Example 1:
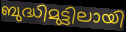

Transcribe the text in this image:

ബുദ്ധിമുട്ടിലായി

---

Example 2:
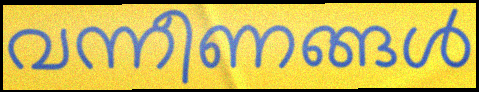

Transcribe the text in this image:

വന്നീണങ്ങൾ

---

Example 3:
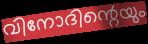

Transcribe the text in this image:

വിനോദിന്റെയും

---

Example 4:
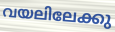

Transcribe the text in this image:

വയലിലേക്കു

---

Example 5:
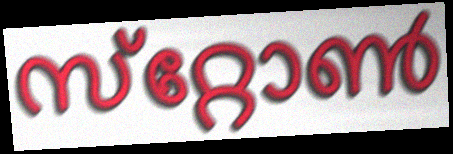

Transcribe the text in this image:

സ്‌റ്റോൺ